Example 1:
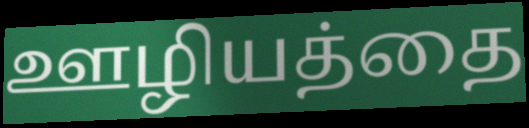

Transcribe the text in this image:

ஊழியத்தை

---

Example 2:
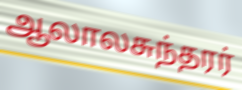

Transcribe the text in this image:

ஆலாலசுந்தரர்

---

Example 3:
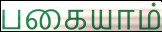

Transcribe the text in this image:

பகையாம்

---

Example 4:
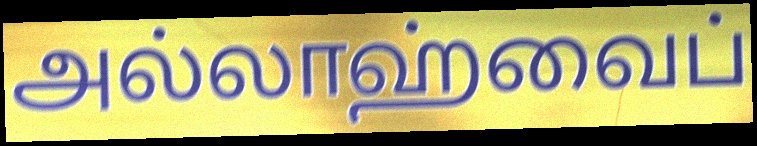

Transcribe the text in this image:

அல்லாஹ்வைப்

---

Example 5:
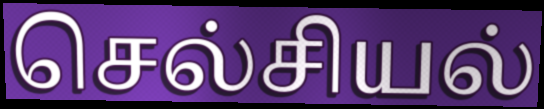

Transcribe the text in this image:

செல்சியல்